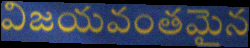
విజయవంతమైన